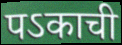
पऽकाची